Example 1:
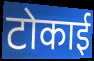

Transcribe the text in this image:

टोकाई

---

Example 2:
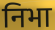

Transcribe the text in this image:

निभा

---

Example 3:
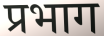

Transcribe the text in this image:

प्रभाग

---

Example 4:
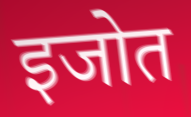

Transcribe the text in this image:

इजोत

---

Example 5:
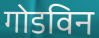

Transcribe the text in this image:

गोडविन